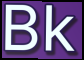
Bk